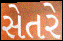
સેતરે